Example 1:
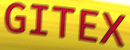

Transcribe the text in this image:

GITEX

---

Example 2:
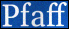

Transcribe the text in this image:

Pfaff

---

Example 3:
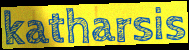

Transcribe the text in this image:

katharsis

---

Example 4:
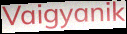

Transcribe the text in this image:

Vaigyanik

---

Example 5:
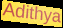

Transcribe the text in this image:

Adithya